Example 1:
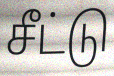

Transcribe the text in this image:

சீட்டு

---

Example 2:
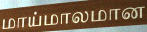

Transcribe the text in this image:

மாய்மாலமான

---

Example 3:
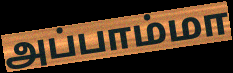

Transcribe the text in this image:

அப்பாம்மா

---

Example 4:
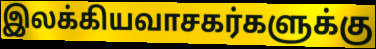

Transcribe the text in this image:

இலக்கியவாசகர்களுக்கு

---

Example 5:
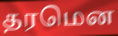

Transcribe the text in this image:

தரமென